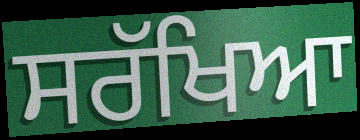
ਸਰੱਖਿਆ